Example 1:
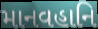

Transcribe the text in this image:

માનવહાનિ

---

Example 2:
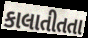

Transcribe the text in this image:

કાલાતીતતા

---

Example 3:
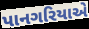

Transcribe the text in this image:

પાનગરિયાએ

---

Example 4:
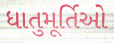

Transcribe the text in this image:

ધાતુમૂર્તિઓ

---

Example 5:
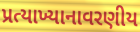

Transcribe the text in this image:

પ્રત્યાખ્યાનાવરણીય